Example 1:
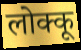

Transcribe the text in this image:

लोक्कू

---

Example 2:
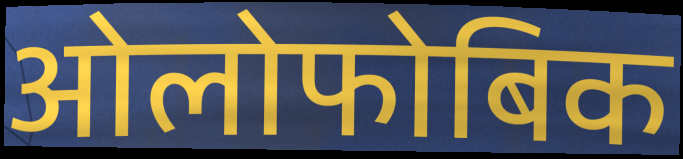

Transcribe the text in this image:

ओलोफोबिक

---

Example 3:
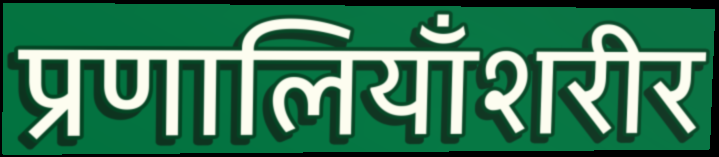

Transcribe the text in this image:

प्रणालियाँशरीर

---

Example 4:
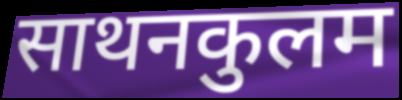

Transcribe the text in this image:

साथनकुलम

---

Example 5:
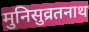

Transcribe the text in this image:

मुनिसुव्रतनाथ